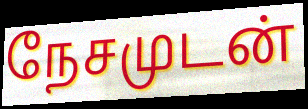
நேசமுடன்